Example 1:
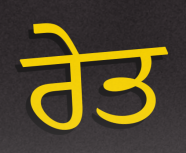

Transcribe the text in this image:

ਰੇਤ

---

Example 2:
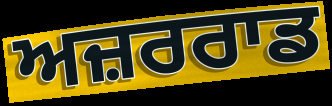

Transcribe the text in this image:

ਅਜ਼ਰਰਾਡ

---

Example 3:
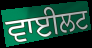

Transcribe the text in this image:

ਵਾਈਲਟ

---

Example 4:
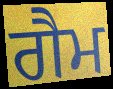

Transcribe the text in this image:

ਗੈਮ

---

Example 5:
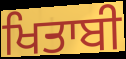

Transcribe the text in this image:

ਖਿਤਾਬੀ